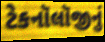
ટેકનૉલૉજીનું